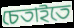
চেতাইতে